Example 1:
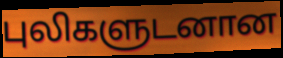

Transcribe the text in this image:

புலிகளுடனான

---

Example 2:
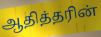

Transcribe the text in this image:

ஆதித்தரின்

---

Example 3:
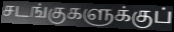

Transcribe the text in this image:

சடங்குகளுக்குப்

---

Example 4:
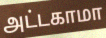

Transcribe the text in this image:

அட்டகாமா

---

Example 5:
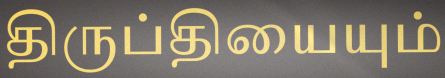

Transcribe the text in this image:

திருப்தியையும்